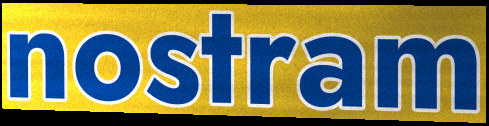
nostram